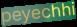
peyechhi